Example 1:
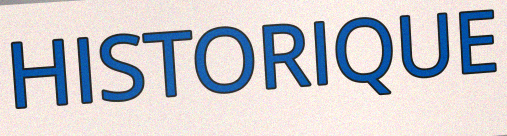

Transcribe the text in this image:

HISTORIQUE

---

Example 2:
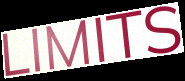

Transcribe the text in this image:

LIMITS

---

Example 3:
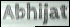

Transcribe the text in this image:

Abhijat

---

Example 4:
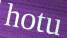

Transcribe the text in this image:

hotu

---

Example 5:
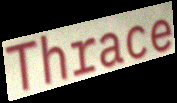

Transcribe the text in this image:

Thrace